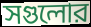
সগুলোর